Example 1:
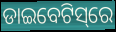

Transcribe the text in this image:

ଡାଇବେଟିସ୍‌ରେ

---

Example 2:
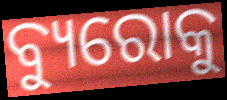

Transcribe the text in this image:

ବ୍ୟୁରୋକୁ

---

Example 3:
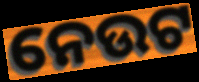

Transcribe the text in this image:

ନେଉଟ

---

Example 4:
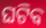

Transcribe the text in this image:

ଘଟିବ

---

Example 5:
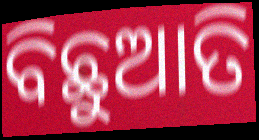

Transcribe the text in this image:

ବିଛୁଆତି